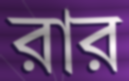
রার